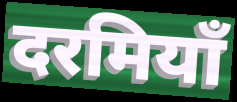
दरमियाँ